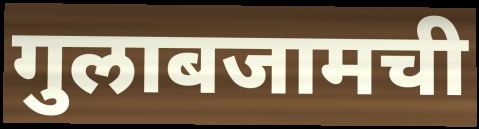
गुलाबजामची